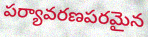
పర్యావరణపరమైన